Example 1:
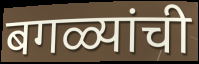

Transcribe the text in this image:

बगळ्यांची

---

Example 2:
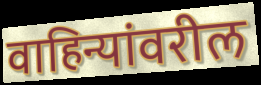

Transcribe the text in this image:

वाहिन्यांवरील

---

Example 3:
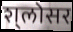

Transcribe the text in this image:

श्लोसर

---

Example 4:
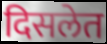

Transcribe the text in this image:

दिसलेत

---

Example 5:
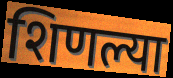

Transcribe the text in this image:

शिणल्या